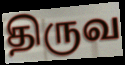
திருவ